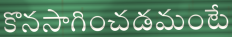
కొనసాగించడమంటే